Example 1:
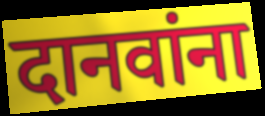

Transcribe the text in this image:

दानवांना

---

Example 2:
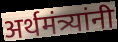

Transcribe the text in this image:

अर्थमंत्र्यांनी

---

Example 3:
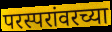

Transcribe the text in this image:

परस्परांवरच्या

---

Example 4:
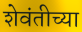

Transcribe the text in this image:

शेवंतीच्या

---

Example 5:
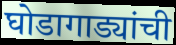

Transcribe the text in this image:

घोडागाड्यांची